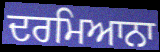
ਦਰਮਿਆਨਾ